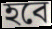
হবে